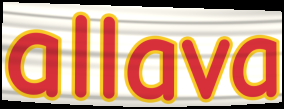
allava